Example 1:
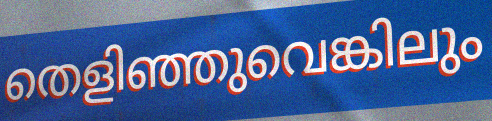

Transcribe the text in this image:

തെളിഞ്ഞുവെങ്കിലും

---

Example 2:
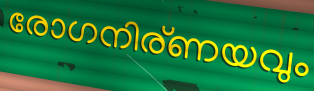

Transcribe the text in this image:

രോഗനിര്ണയവും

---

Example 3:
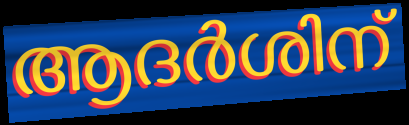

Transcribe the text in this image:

ആദർശിന്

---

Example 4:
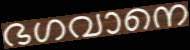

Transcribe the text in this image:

ഭഗവാനെ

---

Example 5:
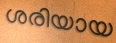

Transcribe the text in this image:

ശരിയായ